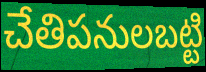
చేతిపనులబట్టి